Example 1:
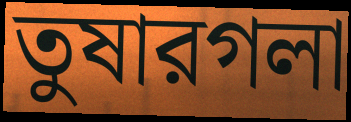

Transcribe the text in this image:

তুষারগলা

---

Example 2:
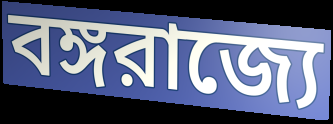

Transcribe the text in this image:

বঙ্গরাজ্যে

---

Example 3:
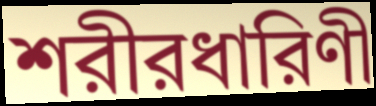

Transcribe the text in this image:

শরীরধারিণী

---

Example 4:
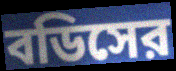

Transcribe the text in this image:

বডিসের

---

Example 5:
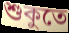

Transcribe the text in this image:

শুকুতে